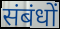
संबंधों